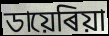
ডায়েৰিয়া